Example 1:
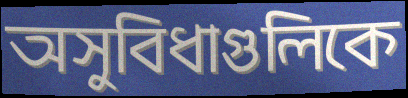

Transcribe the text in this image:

অসুবিধাগুলিকে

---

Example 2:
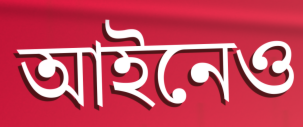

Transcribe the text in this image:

আইনেও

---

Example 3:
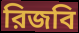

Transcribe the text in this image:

রিজবি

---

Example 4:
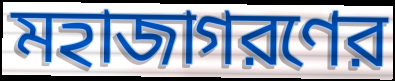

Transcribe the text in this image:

মহাজাগরণের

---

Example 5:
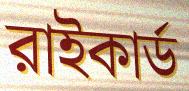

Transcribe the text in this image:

রাইকার্ড